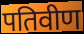
पतिवीण